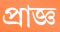
প্রাজ্ঞ